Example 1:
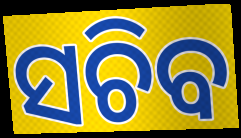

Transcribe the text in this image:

ସଚିବ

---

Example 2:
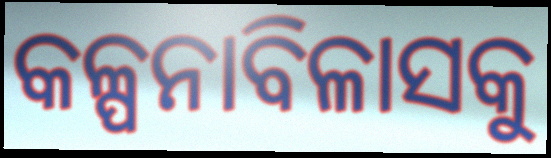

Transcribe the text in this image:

କଳ୍ପନାବିଳାସକୁ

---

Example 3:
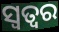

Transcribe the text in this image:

ସ୍ୱତ୍ୱର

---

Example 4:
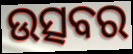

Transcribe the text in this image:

ଉତ୍ସବର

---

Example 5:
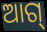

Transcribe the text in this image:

ଆଗ୍